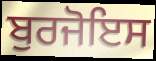
ਬੁਰਜੋਇਸ